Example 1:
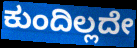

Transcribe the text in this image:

ಕುಂದಿಲ್ಲದೇ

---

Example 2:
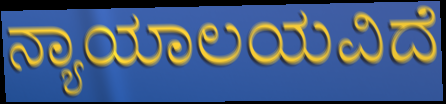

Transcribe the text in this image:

ನ್ಯಾಯಾಲಯವಿದೆ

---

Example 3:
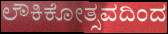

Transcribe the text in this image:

ಲೌಕಿಕೋತ್ಸವದಿಂದ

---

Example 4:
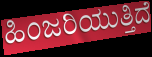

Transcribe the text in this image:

ಹಿಂಜರಿಯುತ್ತಿದೆ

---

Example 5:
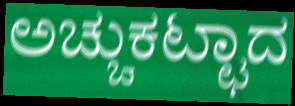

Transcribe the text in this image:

ಅಚ್ಚುಕಟ್ಟಾದ